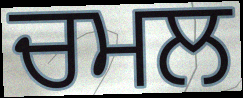
ਚਮਲ